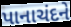
પાનાચંદને